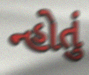
ન્હોતું